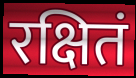
रक्षितं